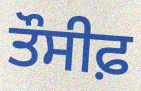
ਤੌਸੀਫ਼